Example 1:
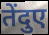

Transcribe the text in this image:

तेंदुए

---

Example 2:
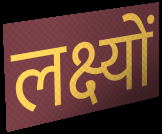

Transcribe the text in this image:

लक्ष्यों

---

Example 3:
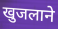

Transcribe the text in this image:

खुजलाने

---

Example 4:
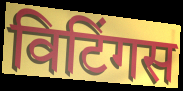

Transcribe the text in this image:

विटिंगस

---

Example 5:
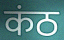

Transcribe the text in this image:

कंठ